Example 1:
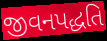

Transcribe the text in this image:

જીવનપદ્ધતિ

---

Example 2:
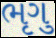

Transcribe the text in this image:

ભૃગુ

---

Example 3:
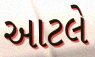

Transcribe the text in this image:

આટલે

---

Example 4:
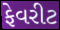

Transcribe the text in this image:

ફેવરીટ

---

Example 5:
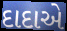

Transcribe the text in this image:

દાદાએ